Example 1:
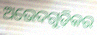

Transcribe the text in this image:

ଅଭେଦଗୁଡ଼ିକର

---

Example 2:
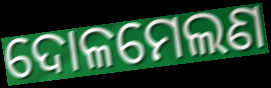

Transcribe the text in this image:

ଦୋଳମେଲଣ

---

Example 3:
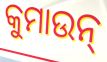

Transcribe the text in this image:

କୁମାଉନ୍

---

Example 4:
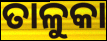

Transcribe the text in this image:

ତାଳୁକା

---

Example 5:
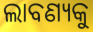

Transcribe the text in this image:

ଲାବଣ୍ୟକୁ